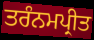
ਤਰੰਨਮਪ੍ਰੀਤ